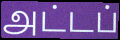
அட்டப்